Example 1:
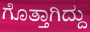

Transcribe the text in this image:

ಗೊತ್ತಾಗಿದ್ದು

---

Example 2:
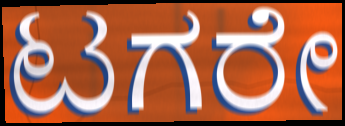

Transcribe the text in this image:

ಟಗರೇ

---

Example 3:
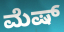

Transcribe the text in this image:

ಮೆಷ್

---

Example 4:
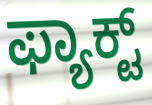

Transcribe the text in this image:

ಫ್ಯಾಕ್ಟ್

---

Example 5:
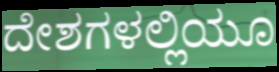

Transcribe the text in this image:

ದೇಶಗಳಲ್ಲಿಯೂ